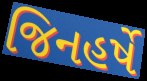
જિનહર્ષે